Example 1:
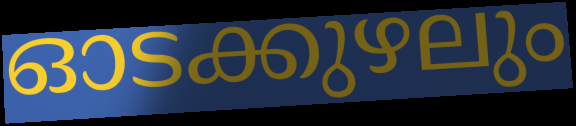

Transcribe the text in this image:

ഓടക്കുഴലും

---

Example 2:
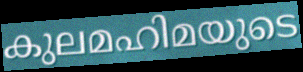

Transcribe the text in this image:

കുലമഹിമയുടെ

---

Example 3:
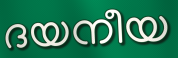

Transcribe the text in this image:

ദയനീയ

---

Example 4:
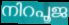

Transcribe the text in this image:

നിറപൂജ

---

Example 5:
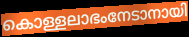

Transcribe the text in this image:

കൊള്ളലാഭംനേടാനായി